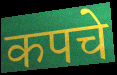
कपचे